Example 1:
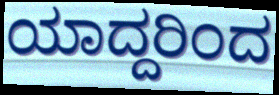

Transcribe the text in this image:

ಯಾದ್ದರಿಂದ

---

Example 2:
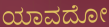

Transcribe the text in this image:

ಯಾವದೋ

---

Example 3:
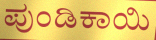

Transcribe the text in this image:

ಪುಂಡಿಕಾಯಿ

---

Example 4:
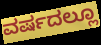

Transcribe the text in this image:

ವರ್ಷದಲ್ಲೂ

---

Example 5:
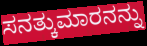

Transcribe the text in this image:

ಸನತ್ಕುಮಾರನನ್ನು